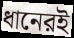
ধানেরই